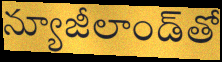
న్యూజీలాండ్‌తో